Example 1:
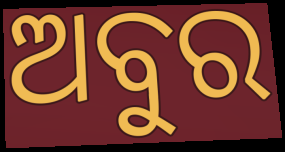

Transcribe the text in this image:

ଅବୁର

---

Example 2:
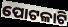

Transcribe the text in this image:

ପୋଟଳାଟି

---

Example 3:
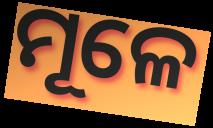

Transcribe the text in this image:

ମୂଳେ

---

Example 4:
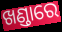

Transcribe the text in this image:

ଖଣ୍ଡାରେ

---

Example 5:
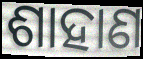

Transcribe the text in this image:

ଶାହାଣ